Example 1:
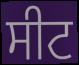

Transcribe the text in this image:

ਸੀਟ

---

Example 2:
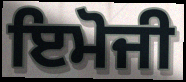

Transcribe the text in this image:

ਇਮੋਜੀ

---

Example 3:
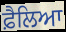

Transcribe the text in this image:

ਫ਼ੈਲਿਆ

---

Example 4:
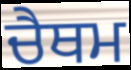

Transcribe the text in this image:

ਚੈਥਮ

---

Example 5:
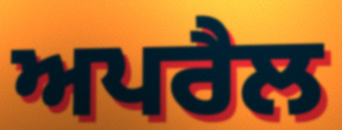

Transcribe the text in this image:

ਅਪਰੈਲ